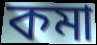
কমা